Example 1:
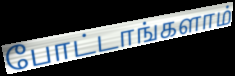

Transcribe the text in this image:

போட்டாங்களாம்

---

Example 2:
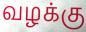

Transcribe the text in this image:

வழக்கு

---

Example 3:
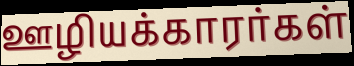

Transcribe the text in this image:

ஊழியக்காரர்கள்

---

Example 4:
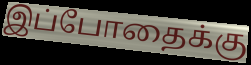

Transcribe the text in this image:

இப்போதைக்கு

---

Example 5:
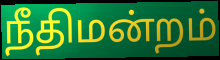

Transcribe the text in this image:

நீதிமன்றம்